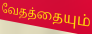
வேதத்தையும்